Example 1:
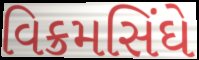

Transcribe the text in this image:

વિક્રમસિંઘે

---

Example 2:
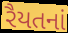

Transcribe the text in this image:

રૈયતનાં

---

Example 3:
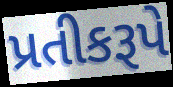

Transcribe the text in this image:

પ્રતીકરૂપે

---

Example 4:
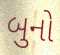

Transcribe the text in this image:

બુનો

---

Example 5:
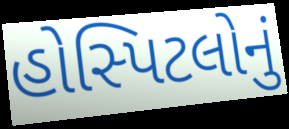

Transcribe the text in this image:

હોસ્પિટલોનું